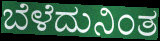
ಬೆಳೆದುನಿಂತ